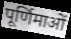
पूर्णिमाओं